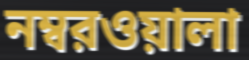
নম্বরওয়ালা